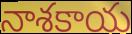
నాశకాయ